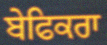
ਬੇਫਿਕਰਾ